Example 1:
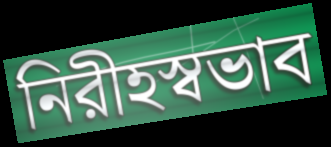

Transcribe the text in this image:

নিরীহস্বভাব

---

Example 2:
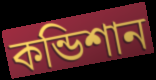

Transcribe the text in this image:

কন্ডিশান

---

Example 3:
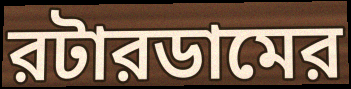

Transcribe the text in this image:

রটারডামের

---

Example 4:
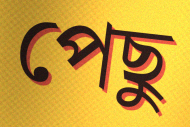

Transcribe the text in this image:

পেছু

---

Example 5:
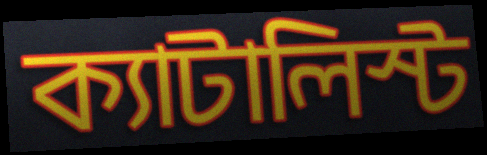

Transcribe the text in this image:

ক্যাটালিস্ট